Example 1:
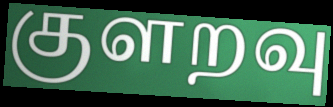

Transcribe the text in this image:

குளறவு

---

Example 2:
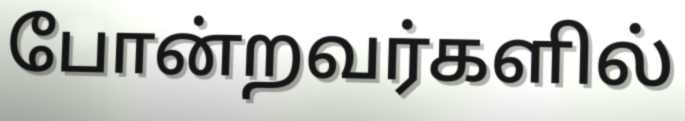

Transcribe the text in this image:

போன்றவர்களில்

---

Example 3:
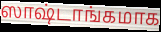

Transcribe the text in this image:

ஸாஷ்டாங்கமாக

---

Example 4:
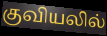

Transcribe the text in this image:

குவியலில்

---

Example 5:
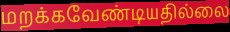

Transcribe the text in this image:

மறக்கவேண்டியதில்லை